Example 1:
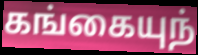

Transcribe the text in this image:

கங்கையுந்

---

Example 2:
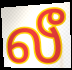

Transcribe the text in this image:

லீ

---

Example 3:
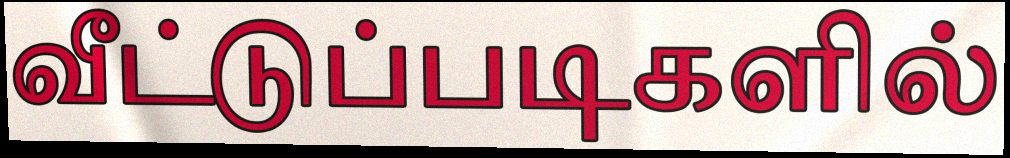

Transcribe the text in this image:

வீட்டுப்படிகளில்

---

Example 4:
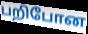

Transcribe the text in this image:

பறிபோன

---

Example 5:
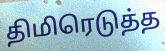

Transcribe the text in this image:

திமிரெடுத்த